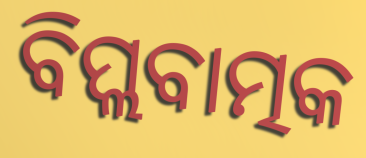
ବିପ୍ଲବାତ୍ମକ